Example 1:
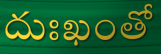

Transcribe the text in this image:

దుఃఖంతో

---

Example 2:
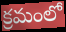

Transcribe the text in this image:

క్రమంలో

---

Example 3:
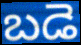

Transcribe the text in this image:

బడె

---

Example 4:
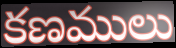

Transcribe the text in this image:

కణములు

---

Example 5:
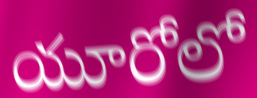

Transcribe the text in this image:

యూరోలో